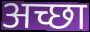
अच्‍छा